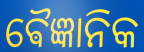
ଵୈଜ୍ଞାନିକ